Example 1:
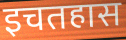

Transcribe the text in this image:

इचतहास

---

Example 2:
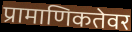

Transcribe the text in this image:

प्रामाणिकतेवर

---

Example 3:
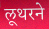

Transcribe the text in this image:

लूथरने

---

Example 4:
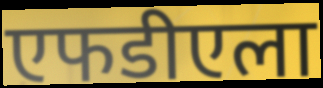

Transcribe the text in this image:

एफडीएला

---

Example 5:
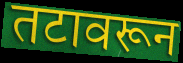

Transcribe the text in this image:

तटावरून